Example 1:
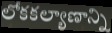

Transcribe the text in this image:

లోకకల్యాణాన్ని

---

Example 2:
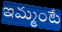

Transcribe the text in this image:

ఇమ్మంటే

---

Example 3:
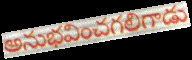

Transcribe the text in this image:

అనుభవించగలిగాడు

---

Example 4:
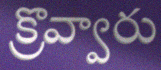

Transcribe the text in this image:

క్రొవ్వారు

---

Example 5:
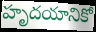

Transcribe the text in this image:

హృదయానికో